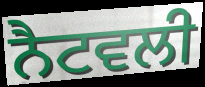
ਨੈਟਵਲੀ